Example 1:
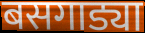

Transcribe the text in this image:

बसगाड्या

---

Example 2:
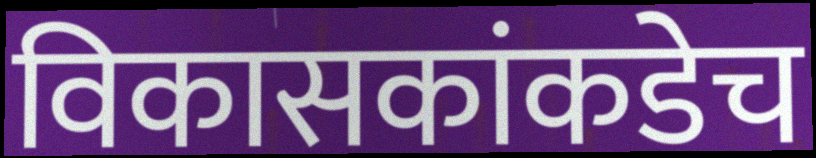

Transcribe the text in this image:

विकासकांकडेच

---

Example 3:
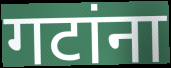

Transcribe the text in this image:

गटांना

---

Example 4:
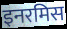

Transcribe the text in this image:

इनरमिस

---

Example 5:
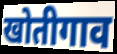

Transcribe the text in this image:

खोतीगाव